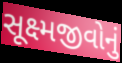
સૂક્ષ્મજીવોનું